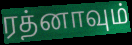
ரத்னாவும்